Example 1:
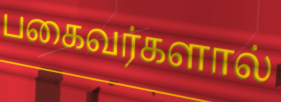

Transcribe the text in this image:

பகைவர்களால்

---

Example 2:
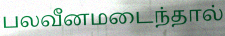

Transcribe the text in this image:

பலவீனமடைந்தால்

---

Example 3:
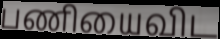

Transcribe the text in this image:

பணியைவிட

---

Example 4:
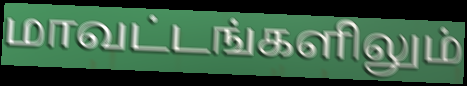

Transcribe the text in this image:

மாவட்டங்களிலும்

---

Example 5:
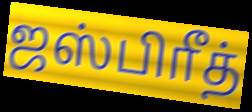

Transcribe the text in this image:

ஜஸ்பிரீத்